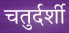
चतुर्दर्शी